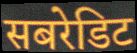
सबरेडिट